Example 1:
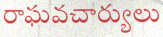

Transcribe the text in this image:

రాఘవచార్యులు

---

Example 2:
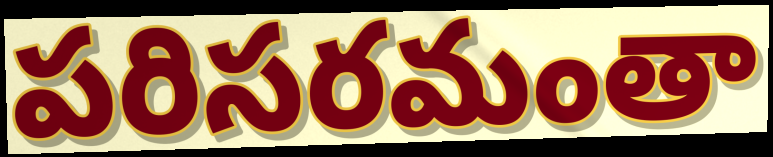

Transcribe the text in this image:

పరిసరమంతా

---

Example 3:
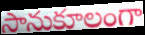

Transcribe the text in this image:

సానుకూలంగా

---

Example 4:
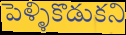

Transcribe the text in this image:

పెళ్ళికొడుకని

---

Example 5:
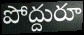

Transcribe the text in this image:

పోద్దురూ